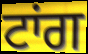
ਟਾਂਗ